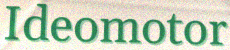
Ideomotor